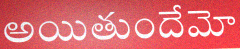
అయితుందేమో